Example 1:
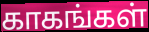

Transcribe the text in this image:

காகங்கள்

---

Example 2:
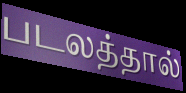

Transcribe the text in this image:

படலத்தால்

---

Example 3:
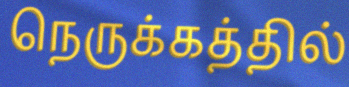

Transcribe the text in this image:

நெருக்கத்தில்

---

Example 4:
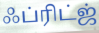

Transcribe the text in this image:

ஃப்ரிட்ஜ்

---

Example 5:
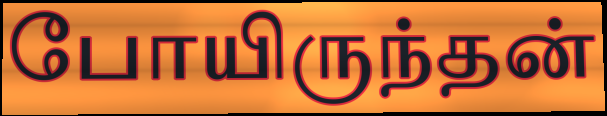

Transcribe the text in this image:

போயிருந்தன்